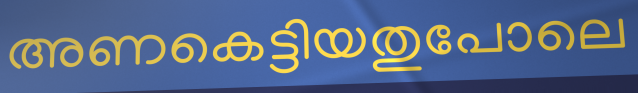
അണകെട്ടിയതുപോലെ